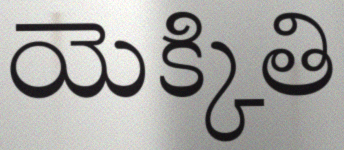
యెక్కితి